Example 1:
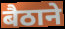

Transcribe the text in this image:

बैठाने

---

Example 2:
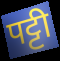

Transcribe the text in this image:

पट्टी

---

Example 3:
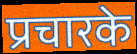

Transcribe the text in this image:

प्रचारके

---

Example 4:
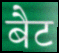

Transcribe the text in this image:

बैट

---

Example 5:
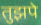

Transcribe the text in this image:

तुझपे